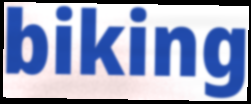
biking